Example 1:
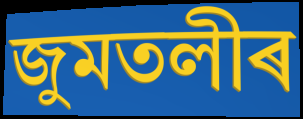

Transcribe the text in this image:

জুমতলীৰ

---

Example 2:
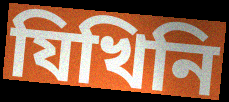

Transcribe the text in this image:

যিখিনি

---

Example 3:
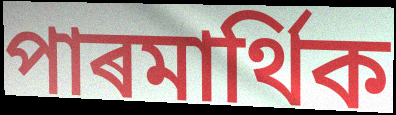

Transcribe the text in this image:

পাৰমাৰ্থিক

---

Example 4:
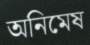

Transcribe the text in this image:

অনিমেষ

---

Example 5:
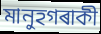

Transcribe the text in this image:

মানুহগৰাকী